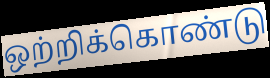
ஒற்றிக்கொண்டு